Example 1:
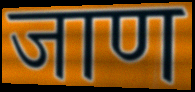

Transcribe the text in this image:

जाण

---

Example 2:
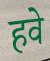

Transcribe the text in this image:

हवे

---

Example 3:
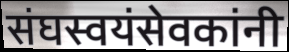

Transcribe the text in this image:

संघस्वयंसेवकांनी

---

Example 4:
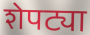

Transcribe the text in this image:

शेपट्या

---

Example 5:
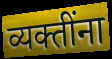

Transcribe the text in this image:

व्यक्तींना